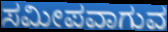
ಸಮೀಪವಾಗುವ